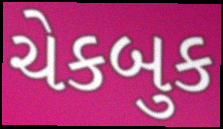
ચેકબુક